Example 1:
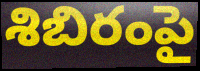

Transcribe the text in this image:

శిబిరంపై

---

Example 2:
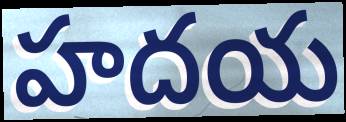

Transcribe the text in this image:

హదయ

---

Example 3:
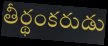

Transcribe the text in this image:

తీర్థంకరుడు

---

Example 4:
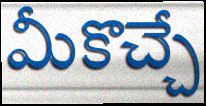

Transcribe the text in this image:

మీకొచ్చే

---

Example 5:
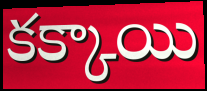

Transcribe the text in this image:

కక్కాయి